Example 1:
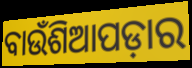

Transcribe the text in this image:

ବାଉଁଶିଆପଡ଼ାର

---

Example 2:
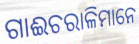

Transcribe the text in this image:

ଗାଈଚରାଳିମାନେ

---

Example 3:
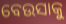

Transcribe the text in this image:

ବେଉସାକୁ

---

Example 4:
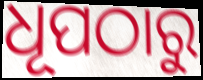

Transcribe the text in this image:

ଧୂପଠାରୁ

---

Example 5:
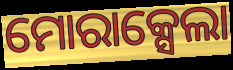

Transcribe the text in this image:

ମୋରାକ୍ସେଲା